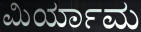
ಮಿರ್ಯಾಮ